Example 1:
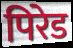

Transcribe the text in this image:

पिरेड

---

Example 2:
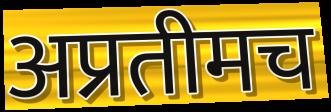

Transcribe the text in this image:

अप्रतीमच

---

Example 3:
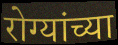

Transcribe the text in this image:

रोग्यांच्या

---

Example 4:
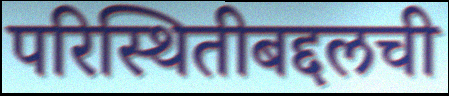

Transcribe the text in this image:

परिस्थितीबद्दलची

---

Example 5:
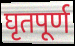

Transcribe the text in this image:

घृतपूर्ण